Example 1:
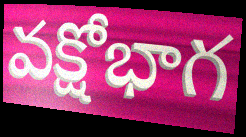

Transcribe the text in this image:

వక్షోభాగ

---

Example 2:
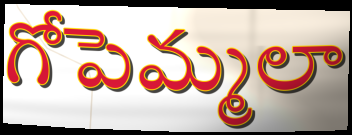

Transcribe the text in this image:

గోపెమ్మలా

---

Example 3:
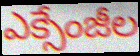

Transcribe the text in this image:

ఎక్సేంజీల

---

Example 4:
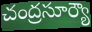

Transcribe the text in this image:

చంద్రసూర్యౌ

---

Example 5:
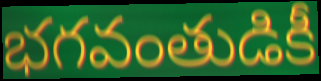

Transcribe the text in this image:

భగవంతుడికీ